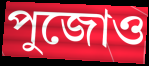
পুজোও